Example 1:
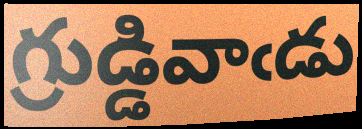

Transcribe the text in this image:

గ్రుడ్డివాఁడు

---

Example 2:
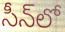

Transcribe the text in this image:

సీన్‌లో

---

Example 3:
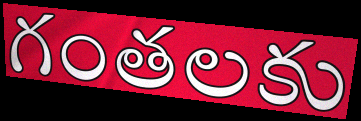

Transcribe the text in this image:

గంతలకు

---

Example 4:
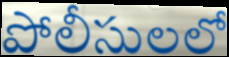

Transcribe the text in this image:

పోలీసులలో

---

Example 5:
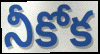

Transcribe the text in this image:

నీకోక